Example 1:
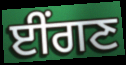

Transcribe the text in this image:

ਈਂਗਣ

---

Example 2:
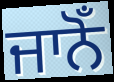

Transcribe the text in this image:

ਜਾਨੋਁ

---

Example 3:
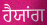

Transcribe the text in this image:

ਹੈਯਾਂਗ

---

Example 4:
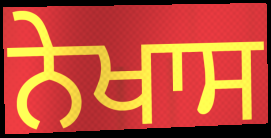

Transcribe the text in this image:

ਨੇਖਾਸ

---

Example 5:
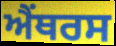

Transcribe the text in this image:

ਐਂਥਰਸ